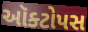
ઑક્ટોપસ